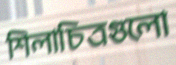
শিলাচিত্রগুলো